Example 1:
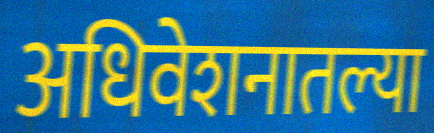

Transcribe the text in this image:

अधिवेशनातल्या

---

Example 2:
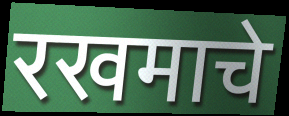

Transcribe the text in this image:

रखमाचे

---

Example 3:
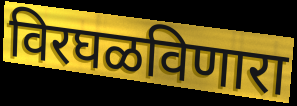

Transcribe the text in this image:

विरघळविणारा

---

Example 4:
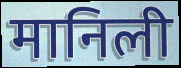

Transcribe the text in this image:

मानिली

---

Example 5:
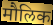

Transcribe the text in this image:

मौलिक